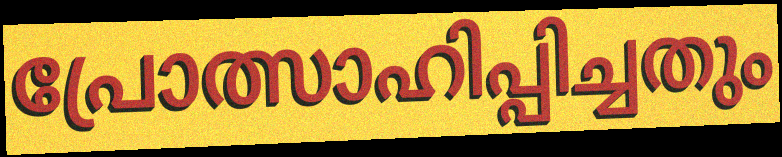
പ്രോത്സാഹിപ്പിച്ചതും